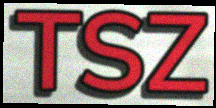
TSZ